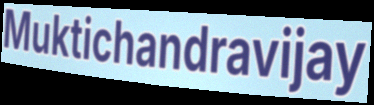
Muktichandravijay